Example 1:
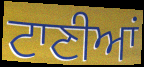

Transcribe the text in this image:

ਟਾਣੀਆਂ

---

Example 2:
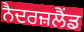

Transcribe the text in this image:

ਨੈਦਰਜ਼ਲੈਂਡ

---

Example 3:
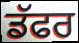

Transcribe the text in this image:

ਡੱਫਰ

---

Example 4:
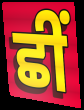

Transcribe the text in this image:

ਛੀਂ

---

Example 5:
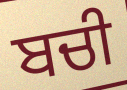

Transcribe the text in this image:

ਬਚੀ